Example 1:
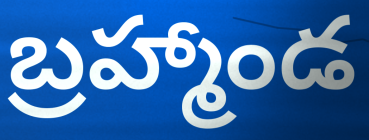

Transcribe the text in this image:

బ్రహ్మాండ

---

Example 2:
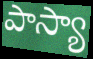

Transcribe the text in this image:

పాస్యా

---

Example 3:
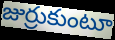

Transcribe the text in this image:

జుర్రుకుంటూ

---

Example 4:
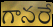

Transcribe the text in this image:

గానరే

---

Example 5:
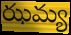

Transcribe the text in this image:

ఝమ్య